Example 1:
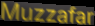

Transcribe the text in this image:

Muzzafar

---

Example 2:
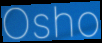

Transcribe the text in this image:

Osho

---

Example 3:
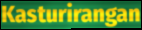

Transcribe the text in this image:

Kasturirangan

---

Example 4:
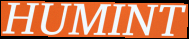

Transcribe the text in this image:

HUMINT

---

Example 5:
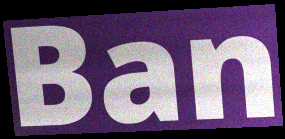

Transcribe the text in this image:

Ban